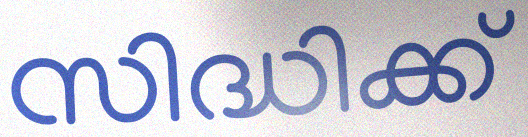
സിദ്ധിക്ക്